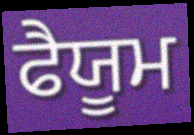
ਫੈਯੂਮ